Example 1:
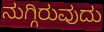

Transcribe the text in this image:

ನುಗ್ಗಿರುವುದು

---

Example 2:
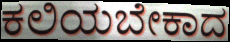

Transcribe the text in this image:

ಕಲಿಯಬೇಕಾದ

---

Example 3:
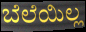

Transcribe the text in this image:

ಬೆಲೆಯಿಲ್ಲ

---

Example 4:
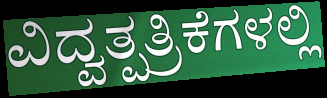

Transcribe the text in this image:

ವಿದ್ವತ್ಪತ್ರಿಕೆಗಳಲ್ಲಿ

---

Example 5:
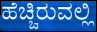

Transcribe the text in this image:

ಹೆಚ್ಚಿರುವಲ್ಲಿ